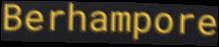
Berhampore